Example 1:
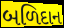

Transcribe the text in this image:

બળિદાન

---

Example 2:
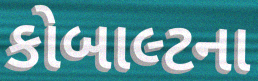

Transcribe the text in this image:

કોબાલ્ટના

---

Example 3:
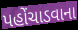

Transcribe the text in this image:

પહોંચાડવાના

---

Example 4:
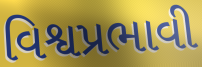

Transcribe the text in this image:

વિશ્વપ્રભાવી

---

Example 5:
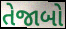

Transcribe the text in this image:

તેજાબો